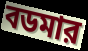
বডমার